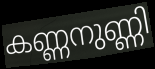
കണ്ണനുണ്ണി